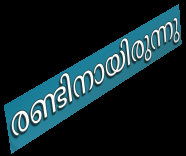
രണ്ടിനായിരുന്നു